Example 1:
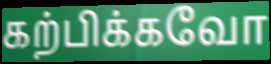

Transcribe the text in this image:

கற்பிக்கவோ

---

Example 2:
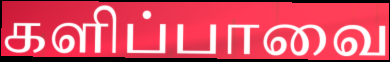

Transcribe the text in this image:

களிப்பாவை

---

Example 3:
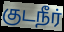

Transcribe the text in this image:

குடநீர்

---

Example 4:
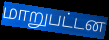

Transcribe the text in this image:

மாறுபட்டன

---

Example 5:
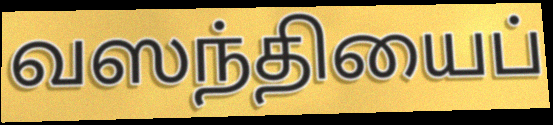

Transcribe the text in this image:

வஸந்தியைப்